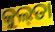
କୁଲ୍‌ତା